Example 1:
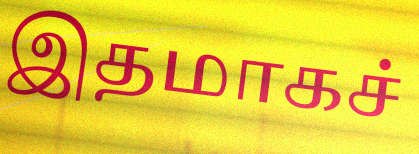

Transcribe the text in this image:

இதமாகச்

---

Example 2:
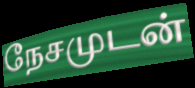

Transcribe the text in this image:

நேசமுடன்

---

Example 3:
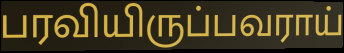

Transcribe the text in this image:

பரவியிருப்பவராய்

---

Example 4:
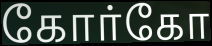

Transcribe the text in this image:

கோர்கோ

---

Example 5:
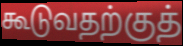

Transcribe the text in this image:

கூடுவதற்குத்